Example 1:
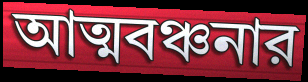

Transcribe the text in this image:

আত্মবঞ্চনার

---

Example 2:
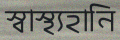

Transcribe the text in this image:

স্বাস্থ্যহানি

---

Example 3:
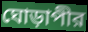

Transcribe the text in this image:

ঘোড়াপীর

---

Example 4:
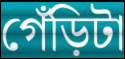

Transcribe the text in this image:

গেঁড়িটা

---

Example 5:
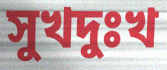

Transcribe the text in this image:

সুখদুঃখ